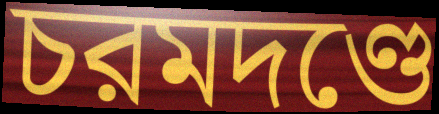
চরমদণ্ডে